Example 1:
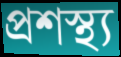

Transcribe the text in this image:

প্ৰশস্থ্য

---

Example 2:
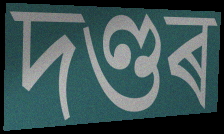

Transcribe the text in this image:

দণ্ডৰ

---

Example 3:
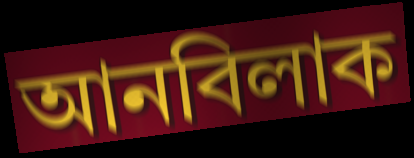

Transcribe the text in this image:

আনবিলাক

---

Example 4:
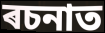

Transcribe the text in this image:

ৰচনাত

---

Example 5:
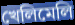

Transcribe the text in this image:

খেলিমেলি